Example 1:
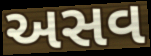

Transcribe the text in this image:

અસવ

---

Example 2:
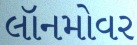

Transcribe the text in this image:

લૉનમોવર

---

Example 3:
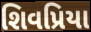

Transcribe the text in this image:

શિવપ્રિયા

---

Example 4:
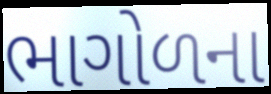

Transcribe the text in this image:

ભાગોળના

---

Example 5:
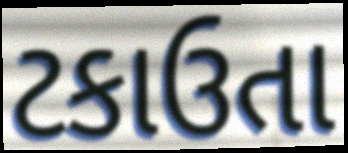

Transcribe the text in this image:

ટકાઉતા